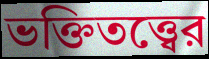
ভক্তিতত্ত্বের